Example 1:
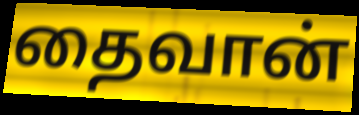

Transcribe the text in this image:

தைவான்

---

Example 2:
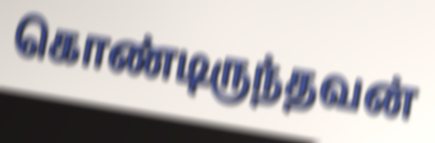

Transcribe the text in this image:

கொண்டிருந்தவன்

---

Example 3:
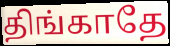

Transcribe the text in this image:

திங்காதே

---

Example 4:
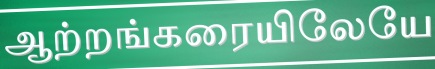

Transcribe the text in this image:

ஆற்றங்கரையிலேயே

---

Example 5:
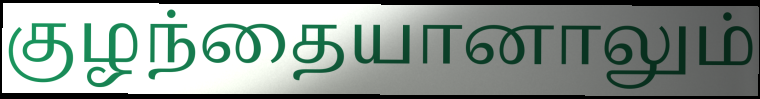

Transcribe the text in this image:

குழந்தையானாலும்